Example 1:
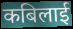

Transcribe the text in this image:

कबिलाई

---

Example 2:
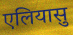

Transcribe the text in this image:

एलियासु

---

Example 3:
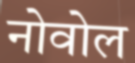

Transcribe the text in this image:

नोवोल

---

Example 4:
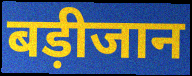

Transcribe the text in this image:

बड़ीजान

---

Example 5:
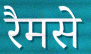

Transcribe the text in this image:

रैमसे